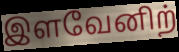
இளவேனிற்